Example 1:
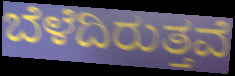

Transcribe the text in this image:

ಬೆಳೆದಿರುತ್ತವೆ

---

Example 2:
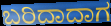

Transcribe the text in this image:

ಬರಿದಾದಾಗ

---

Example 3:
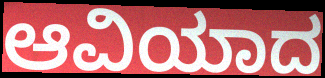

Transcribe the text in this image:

ಆವಿಯಾದ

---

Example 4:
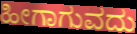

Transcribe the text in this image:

ಹೀಗಾಗುವದು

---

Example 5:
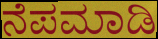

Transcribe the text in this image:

ನೆಪಮಾಡಿ